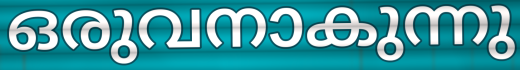
ഒരുവനാകുന്നു